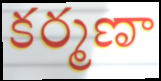
కర్మణా